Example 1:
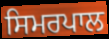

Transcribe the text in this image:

ਸਿਮਰਪਾਲ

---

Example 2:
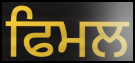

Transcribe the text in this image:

ਫਿਮਲ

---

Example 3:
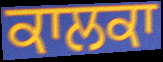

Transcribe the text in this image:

ਕਾਲਕਾ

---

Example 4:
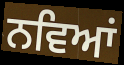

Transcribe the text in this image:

ਨਵਿਆਂ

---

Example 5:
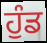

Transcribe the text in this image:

ਹੁੰਡ